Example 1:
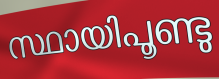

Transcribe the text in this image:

സ്ഥായിപൂണ്ടു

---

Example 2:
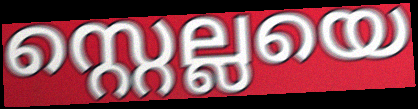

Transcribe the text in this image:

സ്റ്റെല്ലയെ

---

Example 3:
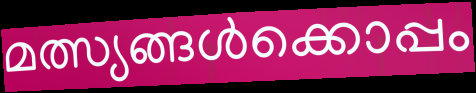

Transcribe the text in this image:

മത്സ്യങ്ങൾക്കൊപ്പം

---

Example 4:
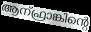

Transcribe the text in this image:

ആന്ഫ്രാങ്കിന്റെ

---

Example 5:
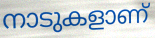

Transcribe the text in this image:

നാടുകളാണ്